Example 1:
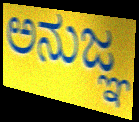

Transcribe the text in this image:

ಅನುಜ್ಞ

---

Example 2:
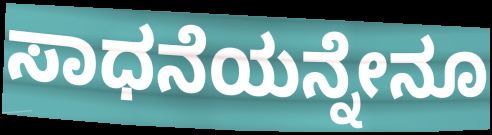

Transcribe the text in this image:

ಸಾಧನೆಯನ್ನೇನೂ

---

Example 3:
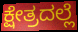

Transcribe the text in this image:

ಕ್ಷೇತ್ರದಲ್ಲೆ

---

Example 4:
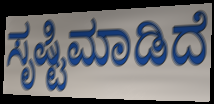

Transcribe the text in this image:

ಸೃಷ್ಟಿಮಾಡಿದೆ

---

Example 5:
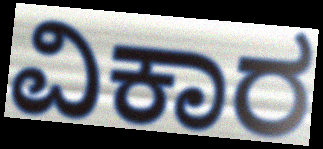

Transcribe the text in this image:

ವಿಕಾರ